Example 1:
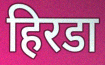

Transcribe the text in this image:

हिरडा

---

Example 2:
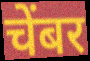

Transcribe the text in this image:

चेंबर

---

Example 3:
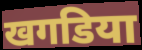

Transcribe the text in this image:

खगडिया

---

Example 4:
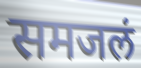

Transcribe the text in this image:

समजलं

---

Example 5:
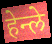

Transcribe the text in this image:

हेन्ले